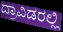
ದ್ರಾವಿಡರಲ್ಲಿ